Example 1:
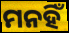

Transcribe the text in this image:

ମନହିଁ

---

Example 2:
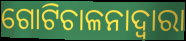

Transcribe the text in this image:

ଗୋଟିଚାଳନାଦ୍ୱାରା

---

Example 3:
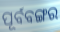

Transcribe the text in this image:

ପୂର୍ବବଙ୍ଗର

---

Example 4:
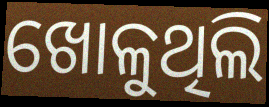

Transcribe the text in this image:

ଖୋଳୁଥିଲି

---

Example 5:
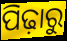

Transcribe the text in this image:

ପିଢ଼ାରୁ